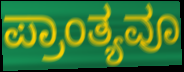
ಪ್ರಾಂತ್ಯವೂ